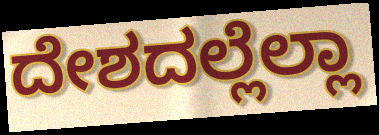
ದೇಶದಲ್ಲೆಲ್ಲಾ